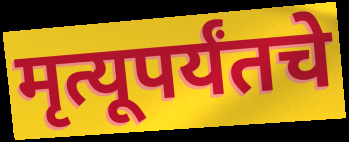
मृत्यूपर्यंतचे